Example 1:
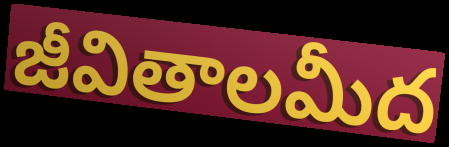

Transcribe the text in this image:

జీవితాలమీద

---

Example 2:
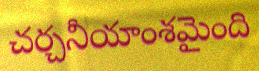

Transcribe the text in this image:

చర్చనీయాంశమైంది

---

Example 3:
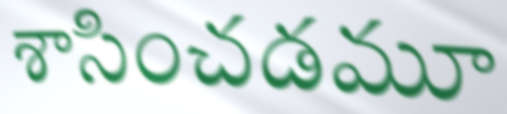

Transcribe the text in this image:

శాసించడమూ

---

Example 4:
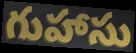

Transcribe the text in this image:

గుహాసు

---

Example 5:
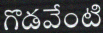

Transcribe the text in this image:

గొడవేంటి